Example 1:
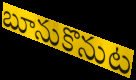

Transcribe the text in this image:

బూనుకొనుట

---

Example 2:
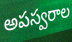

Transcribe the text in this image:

అపస్వరాల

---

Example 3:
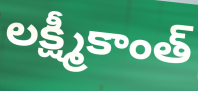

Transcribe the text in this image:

లక్ష్మీకాంత్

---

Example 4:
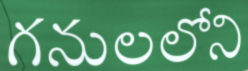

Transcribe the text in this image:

గనులలోని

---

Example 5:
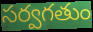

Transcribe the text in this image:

సర్వగతుం